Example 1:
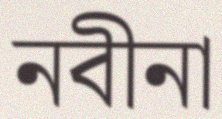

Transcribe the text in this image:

নবীনা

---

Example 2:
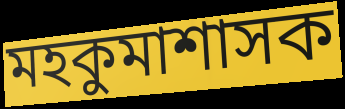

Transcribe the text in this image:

মহকুমাশাসক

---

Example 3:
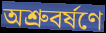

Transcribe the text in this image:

অশ্রুবর্ষণে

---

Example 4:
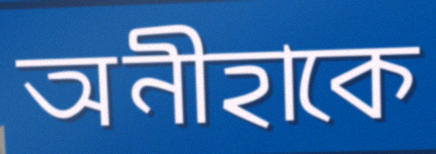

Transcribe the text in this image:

অনীহাকে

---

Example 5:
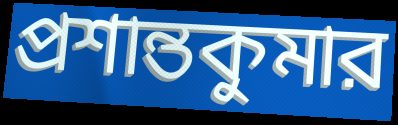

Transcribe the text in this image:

প্রশান্তকুমার